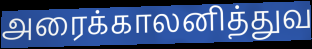
அரைக்காலனித்துவ